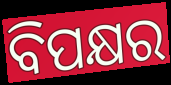
ବିପକ୍ଷର